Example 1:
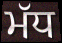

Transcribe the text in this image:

ਮੱਧ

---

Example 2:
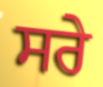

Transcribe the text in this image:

ਸਰੇ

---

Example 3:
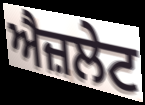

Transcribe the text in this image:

ਐਜ਼ਲੇਟ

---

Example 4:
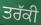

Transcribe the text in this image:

ਤਰੱਕੀ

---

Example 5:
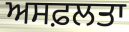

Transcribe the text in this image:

ਅਸਫ਼ਲਤਾ